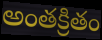
అంతక్రితం